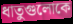
ধাতুগুলোকে